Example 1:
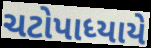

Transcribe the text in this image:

ચટોપાધ્યાયે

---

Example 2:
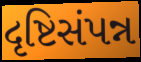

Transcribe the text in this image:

દૃષ્ટિસંપન્ન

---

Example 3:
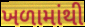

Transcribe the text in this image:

ખળામાંથી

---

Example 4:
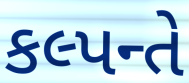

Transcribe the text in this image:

કલ્પન્તે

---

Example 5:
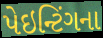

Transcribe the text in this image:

પેઇન્ટિંગના